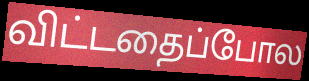
விட்டதைப்போல